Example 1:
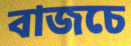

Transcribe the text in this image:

বাজচে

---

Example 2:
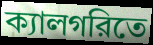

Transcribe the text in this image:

ক্যালগরিতে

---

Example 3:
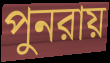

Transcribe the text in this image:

পুনরায়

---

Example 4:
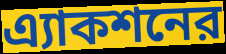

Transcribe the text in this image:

এ্যাকশনের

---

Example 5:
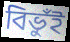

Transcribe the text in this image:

বিভুঁই